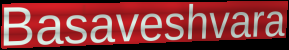
Basaveshvara